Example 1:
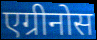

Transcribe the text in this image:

एग्रीनोस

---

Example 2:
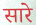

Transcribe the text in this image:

सारे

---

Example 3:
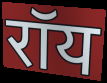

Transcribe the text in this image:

रॉय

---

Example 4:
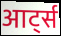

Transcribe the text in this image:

आर्ट्स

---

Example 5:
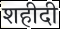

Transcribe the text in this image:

शहीदी